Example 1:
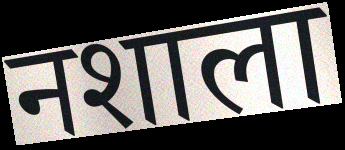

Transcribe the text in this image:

नशाला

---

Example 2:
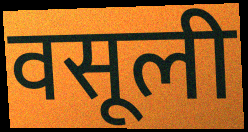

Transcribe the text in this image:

वसूली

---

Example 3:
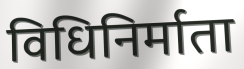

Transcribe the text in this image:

विधिनिर्माता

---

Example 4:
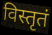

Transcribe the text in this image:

विस्तृतं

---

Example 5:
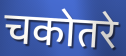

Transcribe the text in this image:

चकोतरे